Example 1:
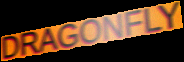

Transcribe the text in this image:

DRAGONFLY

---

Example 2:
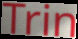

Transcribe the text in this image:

Trin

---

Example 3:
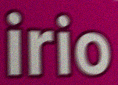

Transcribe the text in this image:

irio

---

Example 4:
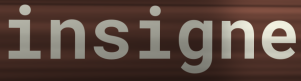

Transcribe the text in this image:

insigne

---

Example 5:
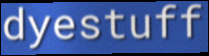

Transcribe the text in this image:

dyestuff